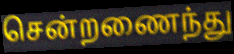
சென்றணைந்து